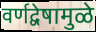
वर्णद्वेषामुळे